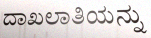
ದಾಖಲಾತಿಯನ್ನು